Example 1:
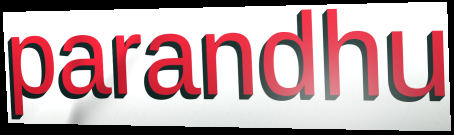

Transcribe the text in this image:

parandhu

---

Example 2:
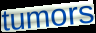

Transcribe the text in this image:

tumors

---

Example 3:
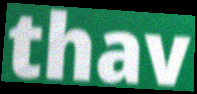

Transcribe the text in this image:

thav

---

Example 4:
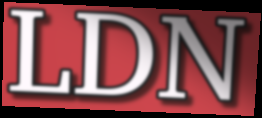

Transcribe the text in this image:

LDN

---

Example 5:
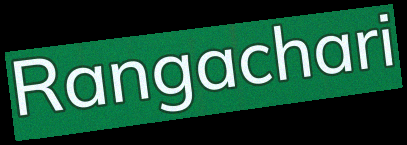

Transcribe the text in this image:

Rangachari